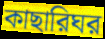
কাছারিঘর